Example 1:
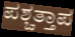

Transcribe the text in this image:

ಪಶ್ಚತ್ತಾಪ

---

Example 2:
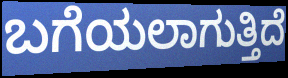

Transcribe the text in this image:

ಬಗೆಯಲಾಗುತ್ತಿದೆ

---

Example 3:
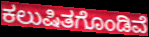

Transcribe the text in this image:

ಕಲುಷಿತಗೊಂಡಿವೆ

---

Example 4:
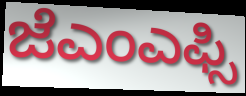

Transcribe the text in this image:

ಜೆಎಂಎಫ್ಸಿ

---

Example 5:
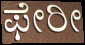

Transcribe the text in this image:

ಫೇರೀ